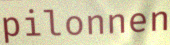
pilonnen